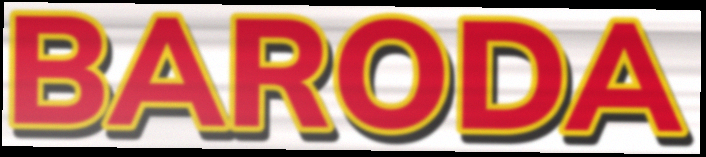
BARODA